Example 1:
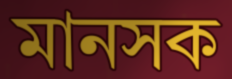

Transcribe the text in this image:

মানসক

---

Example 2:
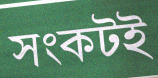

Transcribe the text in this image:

সংকটই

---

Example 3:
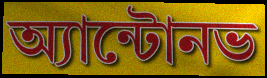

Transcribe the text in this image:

অ্যান্টোনভ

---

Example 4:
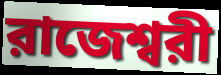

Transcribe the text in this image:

রাজেশ্বরী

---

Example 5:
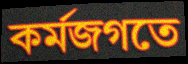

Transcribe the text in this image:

কর্মজগতে